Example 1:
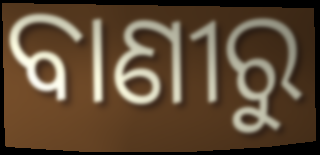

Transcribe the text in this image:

ବାଣୀରୁ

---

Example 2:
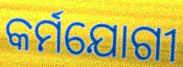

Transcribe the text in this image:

କର୍ମଯୋଗୀ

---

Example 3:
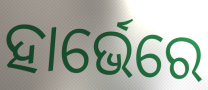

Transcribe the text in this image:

ହାର୍ଭେରେ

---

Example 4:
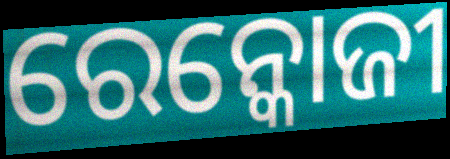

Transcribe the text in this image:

ରେନ୍କୋଜୀ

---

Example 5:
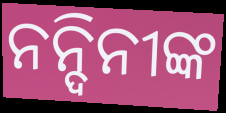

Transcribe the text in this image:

ନନ୍ଦିନୀଙ୍କ